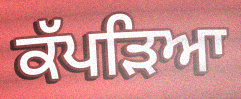
ਕੱਪੜਿਆ